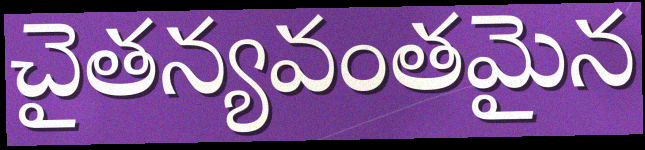
చైతన్యవంతమైన